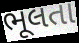
ભૂલતા